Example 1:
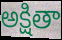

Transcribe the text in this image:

అక్షితా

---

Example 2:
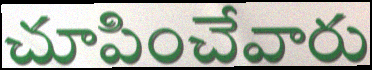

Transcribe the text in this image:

చూపించేవారు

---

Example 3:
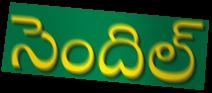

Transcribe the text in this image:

సెందిల్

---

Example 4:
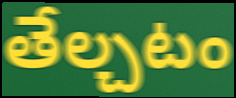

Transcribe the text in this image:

తేల్చటం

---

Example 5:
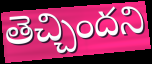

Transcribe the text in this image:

తెచ్చిందని